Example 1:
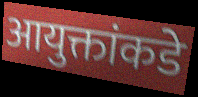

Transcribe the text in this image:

आयुक्तांकडे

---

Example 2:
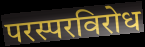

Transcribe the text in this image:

परस्परविरोध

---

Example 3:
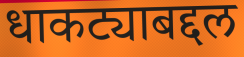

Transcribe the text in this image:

धाकट्याबद्दल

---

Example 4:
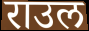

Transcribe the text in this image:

राउल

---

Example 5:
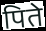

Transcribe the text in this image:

पिते